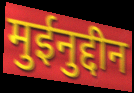
मुईनुद्दीन